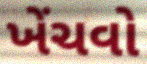
ખેંચવો